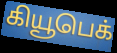
கியூபெக்